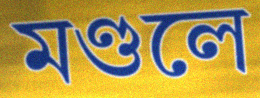
মণ্ডলে